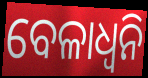
ବେଳାଧ୍ୱନି